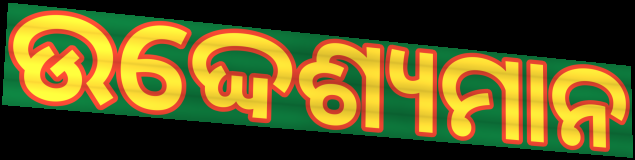
ଉଦ୍ଦେଶ୍ୟମାନ